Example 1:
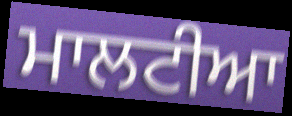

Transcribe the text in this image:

ਮਾਲਟੀਆ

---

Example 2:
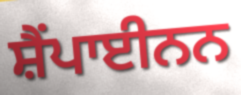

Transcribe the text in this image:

ਸ਼ੈਂਪਾਈਨਨ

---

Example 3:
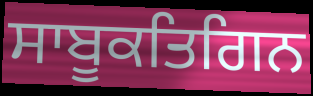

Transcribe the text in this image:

ਸਾਬੂਕਤਿਗਿਨ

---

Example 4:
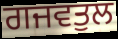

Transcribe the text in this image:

ਗਜਵਤੁਲ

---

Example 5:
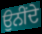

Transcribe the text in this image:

ਉਨੀਂਦੇ